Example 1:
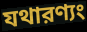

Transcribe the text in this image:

যথারণ্যং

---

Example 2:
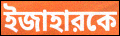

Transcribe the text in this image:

ইজাহারকে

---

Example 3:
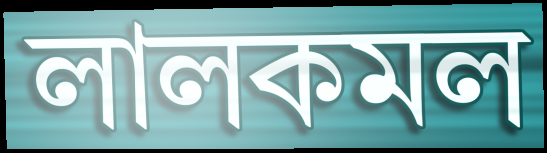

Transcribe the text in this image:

লালকমল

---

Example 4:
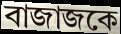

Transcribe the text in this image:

বাজাজকে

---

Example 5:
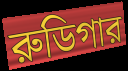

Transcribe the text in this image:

রুডিগার